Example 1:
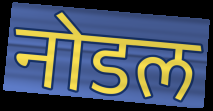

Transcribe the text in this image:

नोडल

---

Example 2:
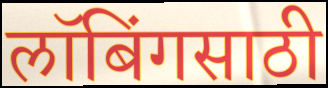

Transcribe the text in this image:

लॉबिंगसाठी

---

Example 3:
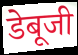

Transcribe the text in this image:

डेबूजी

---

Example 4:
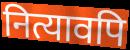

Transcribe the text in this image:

नित्यावपि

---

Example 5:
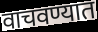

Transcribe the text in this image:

वाचवण्यात